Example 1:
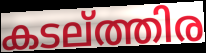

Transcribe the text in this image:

കടല്ത്തിര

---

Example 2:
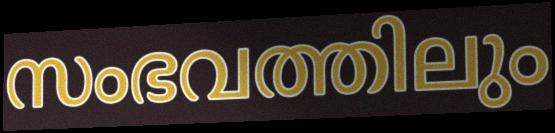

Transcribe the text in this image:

സംഭവത്തിലും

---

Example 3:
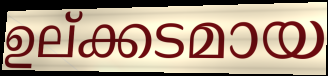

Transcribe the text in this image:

ഉല്ക്കടമായ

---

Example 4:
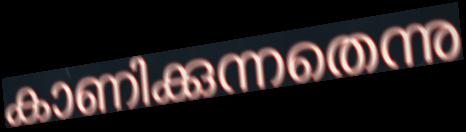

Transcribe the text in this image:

കാണിക്കുന്നതെന്നു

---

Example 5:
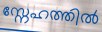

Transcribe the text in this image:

സ്നേഹത്തിൽ